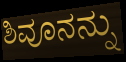
ಶಿವೂನನ್ನು